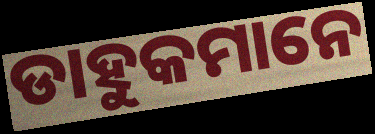
ଡାହୁକମାନେ